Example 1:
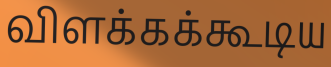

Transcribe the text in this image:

விளக்கக்கூடிய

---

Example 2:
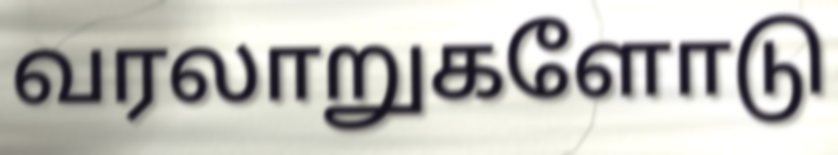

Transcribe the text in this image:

வரலாறுகளோடு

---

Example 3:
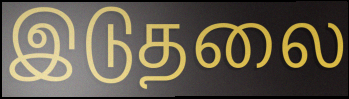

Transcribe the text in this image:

இடுதலை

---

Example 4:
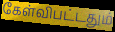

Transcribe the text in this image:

கேள்விபட்டதும்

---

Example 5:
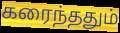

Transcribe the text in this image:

கரைந்ததும்